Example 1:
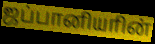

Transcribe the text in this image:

ஜப்பானியரின்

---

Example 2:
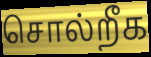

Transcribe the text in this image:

சொல்றீக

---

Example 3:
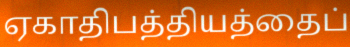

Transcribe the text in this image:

ஏகாதிபத்தியத்தைப்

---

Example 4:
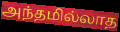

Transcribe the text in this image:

அந்தமில்லாத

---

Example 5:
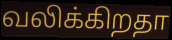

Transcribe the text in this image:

வலிக்கிறதா